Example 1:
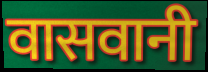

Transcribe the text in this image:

वासवानी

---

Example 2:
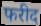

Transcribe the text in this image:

फरीद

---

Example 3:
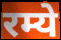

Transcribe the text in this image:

रम्ये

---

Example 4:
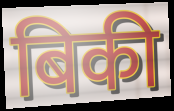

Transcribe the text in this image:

बिकी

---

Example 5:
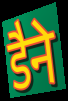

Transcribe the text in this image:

डैने